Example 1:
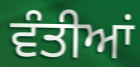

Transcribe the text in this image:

ਵੰਤੀਆਂ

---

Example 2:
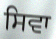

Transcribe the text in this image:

ਸਿਵਾ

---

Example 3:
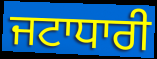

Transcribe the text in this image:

ਜਟਾਧਾਰੀ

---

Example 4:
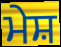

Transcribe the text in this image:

ਮੇਸ਼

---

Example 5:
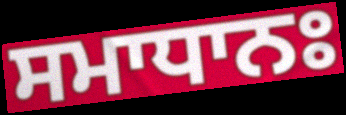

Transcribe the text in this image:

ਸਮਾਧਾਨਃ